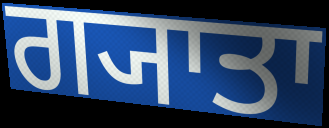
ਗ੍ਯਾਤਾ